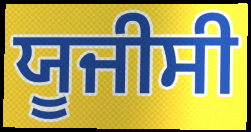
ਯੂਜੀਸੀ